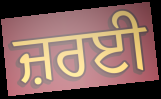
ਜ਼ਰਈ